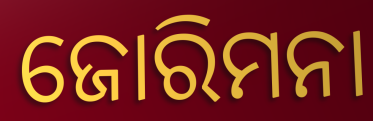
ଜୋରିମନା